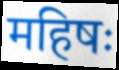
महिषः